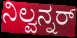
ನಿಲ್ವನ್ನರ್